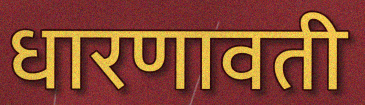
धारणावती